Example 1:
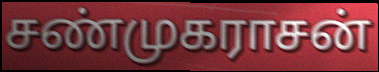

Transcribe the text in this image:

சண்முகராசன்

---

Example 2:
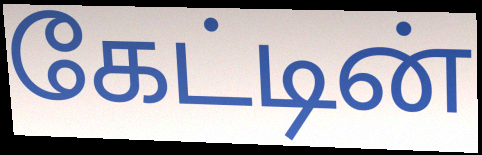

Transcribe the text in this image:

கேட்டின்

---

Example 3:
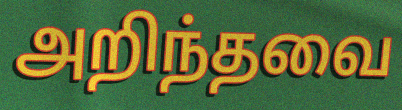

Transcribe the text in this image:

அறிந்தவை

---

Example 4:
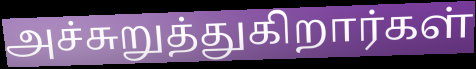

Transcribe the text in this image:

அச்சுறுத்துகிறார்கள்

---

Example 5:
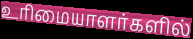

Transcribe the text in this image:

உரிமையாளர்களில்